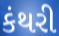
કંથરી